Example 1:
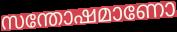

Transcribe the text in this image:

സന്തോഷമാണോ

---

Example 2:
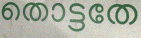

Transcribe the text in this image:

തൊട്ടതേ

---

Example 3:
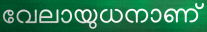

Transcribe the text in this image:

വേലായുധനാണ്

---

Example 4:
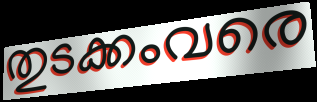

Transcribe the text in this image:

തുടക്കംവരെ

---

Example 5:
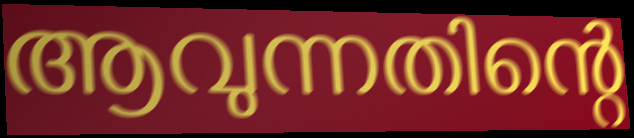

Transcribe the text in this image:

ആവുന്നതിന്റെ